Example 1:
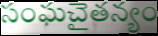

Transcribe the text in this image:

సంఘచైతన్యం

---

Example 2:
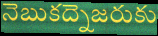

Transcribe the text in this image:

నెబుకద్నెజరుకు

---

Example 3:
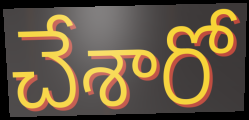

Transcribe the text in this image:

చేశారో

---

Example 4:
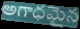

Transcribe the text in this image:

అగాధమైన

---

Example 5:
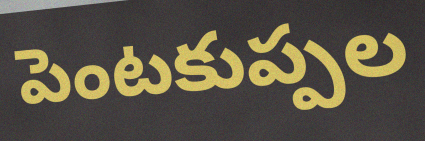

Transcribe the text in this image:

పెంటకుప్పల